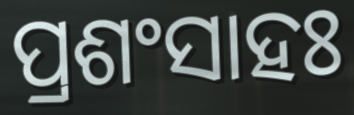
ପ୍ରଶଂସାହଃ